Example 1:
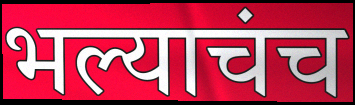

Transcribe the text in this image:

भल्याचंच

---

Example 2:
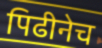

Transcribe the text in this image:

पिढीनेच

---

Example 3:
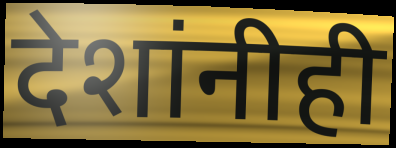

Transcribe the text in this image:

देशांनीही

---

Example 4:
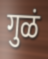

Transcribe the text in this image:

गुळं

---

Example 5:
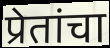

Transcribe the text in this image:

प्रेतांचा